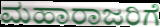
ಮಹಾರಾಜರಿಗೆ